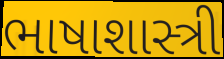
ભાષાશાસ્ત્રી